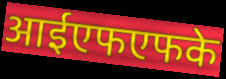
आईएफएफके